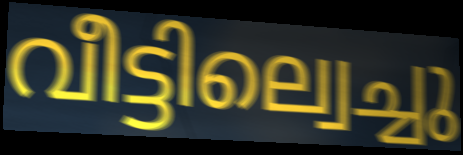
വീട്ടില്വെച്ചു